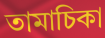
তামাচিকা